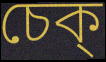
চেক্